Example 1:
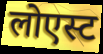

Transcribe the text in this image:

लोएस्ट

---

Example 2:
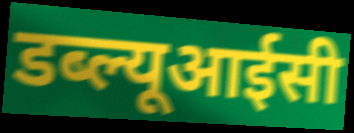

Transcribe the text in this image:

डब्ल्यूआईसी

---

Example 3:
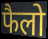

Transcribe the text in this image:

फैलो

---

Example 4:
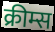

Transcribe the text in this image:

क्रीम्‍स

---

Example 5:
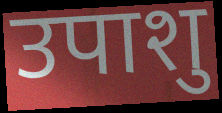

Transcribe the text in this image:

उपाशु